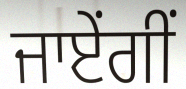
ਜਾਏਂਗੀਂ